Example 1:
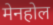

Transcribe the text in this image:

मेनहोल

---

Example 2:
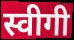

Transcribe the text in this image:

स्वीगी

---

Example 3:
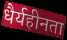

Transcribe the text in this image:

धैर्यहीनता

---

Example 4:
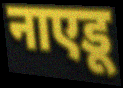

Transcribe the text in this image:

नाएडू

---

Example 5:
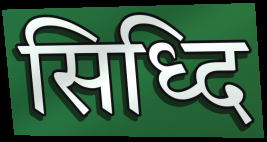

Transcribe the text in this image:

सिध्दि